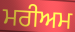
ਮਰੀਅਮ